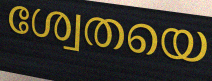
ശ്വേതയെ